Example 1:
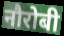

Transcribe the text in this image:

नौरोबी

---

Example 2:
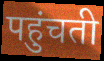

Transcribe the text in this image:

पहुंचती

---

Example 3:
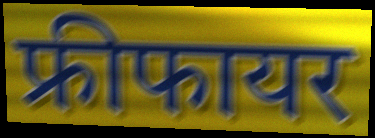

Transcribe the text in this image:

फ्रीफायर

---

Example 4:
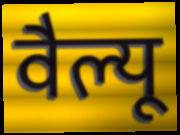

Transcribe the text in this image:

वैल्यू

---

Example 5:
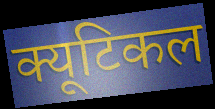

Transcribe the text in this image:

क्यूटिकल